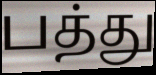
பத்து